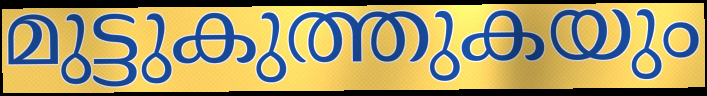
മുട്ടുകുത്തുകയും